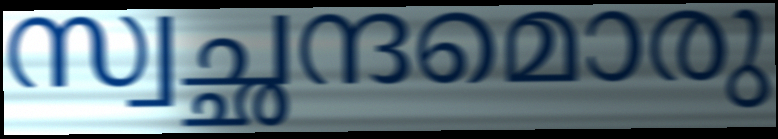
സ്വച്ഛന്ദമൊരു